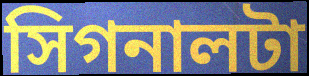
সিগনালটা